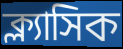
ক্ল্যাসিক